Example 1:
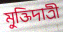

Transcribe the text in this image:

মুক্তিদাত্রী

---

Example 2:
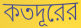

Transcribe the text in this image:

কতদূরের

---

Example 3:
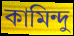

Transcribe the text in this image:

কামিন্দু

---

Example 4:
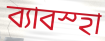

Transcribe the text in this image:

ব্যাবস্হা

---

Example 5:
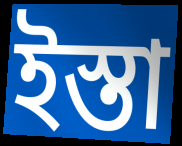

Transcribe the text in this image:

ইস্তা